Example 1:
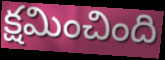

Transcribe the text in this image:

క్షమించింది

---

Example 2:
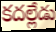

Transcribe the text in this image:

కదల్లేడు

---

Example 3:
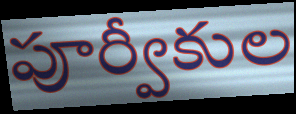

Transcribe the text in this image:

పూర్వీకుల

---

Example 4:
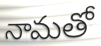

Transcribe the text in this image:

నామతో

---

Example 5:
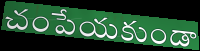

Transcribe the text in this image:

చంపేయకుండా